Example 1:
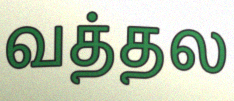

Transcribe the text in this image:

வத்தல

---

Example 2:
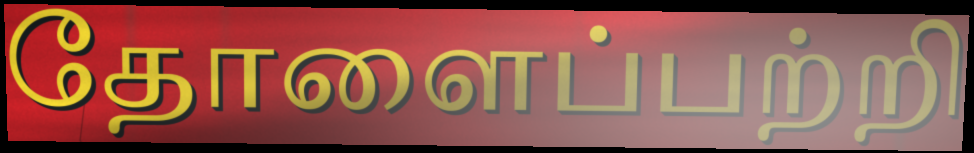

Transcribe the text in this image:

தோளைப்பற்றி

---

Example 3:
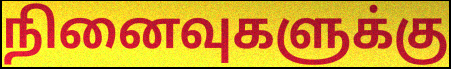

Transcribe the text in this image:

நினைவுகளுக்கு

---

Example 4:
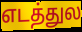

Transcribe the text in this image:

எடத்துல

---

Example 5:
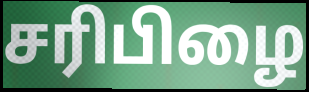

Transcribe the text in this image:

சரிபிழை